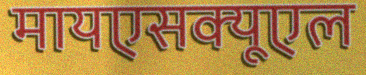
मायएसक्यूएल